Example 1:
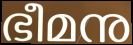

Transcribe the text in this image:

ഭീമനു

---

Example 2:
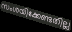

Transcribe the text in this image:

സംശയിക്കേണ്ടതില്ല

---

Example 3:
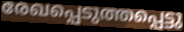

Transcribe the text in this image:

രേഖപ്പെടുത്തപ്പെട്ടു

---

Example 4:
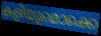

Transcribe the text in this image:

കളിയുമൊക്കെ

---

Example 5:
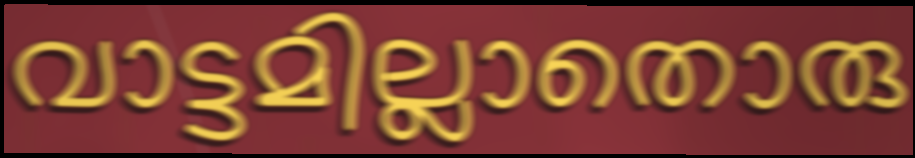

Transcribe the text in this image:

വാട്ടമില്ലാതൊരു